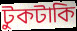
টুকটাকি